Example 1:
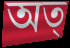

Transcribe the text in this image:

অত্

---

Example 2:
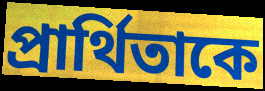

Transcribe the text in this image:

প্রার্থিতাকে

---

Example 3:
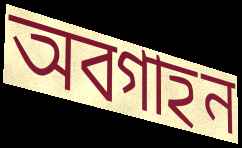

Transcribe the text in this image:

অবগাহন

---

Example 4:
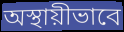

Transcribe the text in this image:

অস্থায়ীভাবে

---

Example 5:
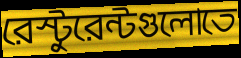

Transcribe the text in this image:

রেস্টুরেন্টগুলোতে